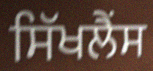
ਸਿੱਖਲੈਂਸ